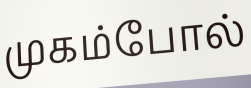
முகம்போல்